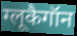
ग्लूकैगॉन